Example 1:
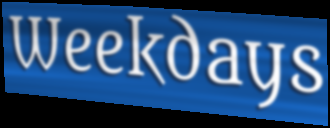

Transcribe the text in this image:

Weekdays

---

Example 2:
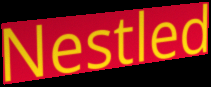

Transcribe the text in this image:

Nestled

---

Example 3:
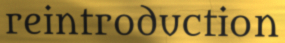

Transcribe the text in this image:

reintroduction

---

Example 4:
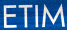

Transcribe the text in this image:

ETIM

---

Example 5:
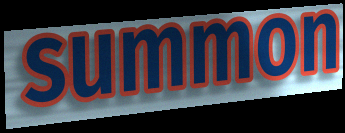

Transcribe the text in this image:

summon